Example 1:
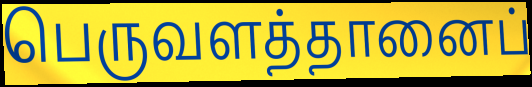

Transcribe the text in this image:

பெருவளத்தானைப்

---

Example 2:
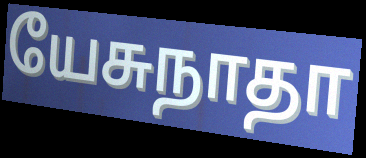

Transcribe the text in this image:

யேசுநாதா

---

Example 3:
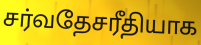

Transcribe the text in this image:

சர்வதேசரீதியாக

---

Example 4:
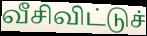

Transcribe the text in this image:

வீசிவிட்டுச்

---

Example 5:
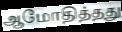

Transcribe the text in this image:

ஆமோதித்தது